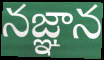
నజ్ఞాన